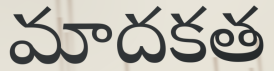
మాదకత